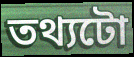
তথ্যটো